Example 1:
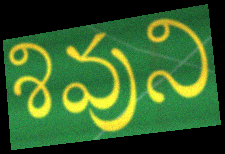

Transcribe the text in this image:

శివుని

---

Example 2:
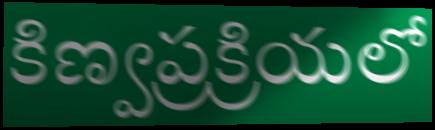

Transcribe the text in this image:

కిణ్వప్రక్రియలో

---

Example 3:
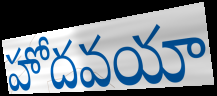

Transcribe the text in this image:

హోదవయా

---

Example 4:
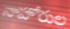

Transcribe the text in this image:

నాహోరుల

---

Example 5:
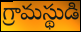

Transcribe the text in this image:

గ్రామస్థుడి